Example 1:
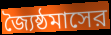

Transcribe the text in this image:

জ্যৈষ্ঠমাসের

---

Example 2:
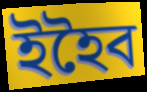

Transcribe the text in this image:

ইহৈব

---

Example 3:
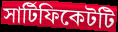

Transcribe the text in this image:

সার্টিফিকেটটি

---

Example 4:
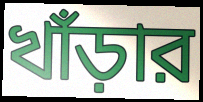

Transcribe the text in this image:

খাঁড়ার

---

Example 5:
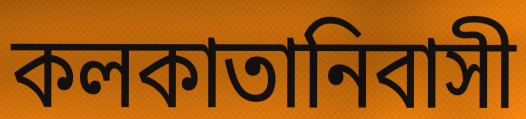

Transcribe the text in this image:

কলকাতানিবাসী